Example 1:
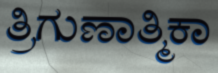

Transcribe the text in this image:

ತ್ರಿಗುಣಾತ್ಮಿಕಾ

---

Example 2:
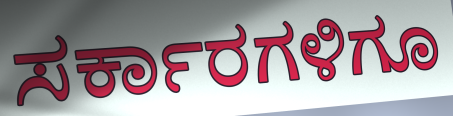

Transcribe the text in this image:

ಸರ್ಕಾರಗಳಿಗೂ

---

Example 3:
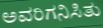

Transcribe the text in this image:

ಅವರಿಗನಿಸಿತು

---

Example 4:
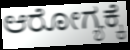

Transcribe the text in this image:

ಆರೋಗ್ಯಕ್ಕೆ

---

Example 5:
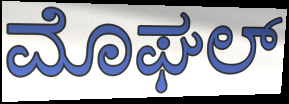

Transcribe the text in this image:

ಮೊಘಲ್